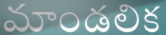
మాండలిక